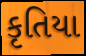
કૃતિયા